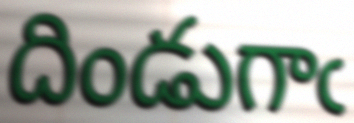
దిండుగాఁ